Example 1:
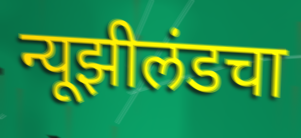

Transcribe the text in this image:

न्यूझीलंडचा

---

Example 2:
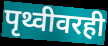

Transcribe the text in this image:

पृथ्वीवरही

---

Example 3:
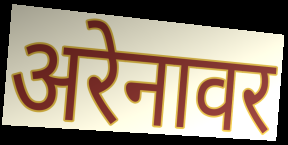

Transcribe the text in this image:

अरेनावर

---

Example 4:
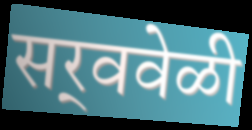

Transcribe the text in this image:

सर्ववेळी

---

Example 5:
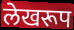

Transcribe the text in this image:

लेखरूप